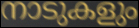
നാടുകളും